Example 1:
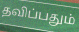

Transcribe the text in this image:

தவிப்பதும்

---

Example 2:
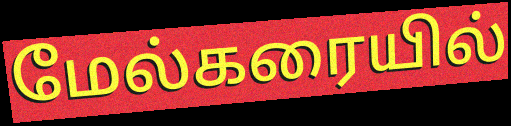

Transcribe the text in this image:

மேல்கரையில்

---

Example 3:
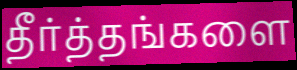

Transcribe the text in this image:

தீர்த்தங்களை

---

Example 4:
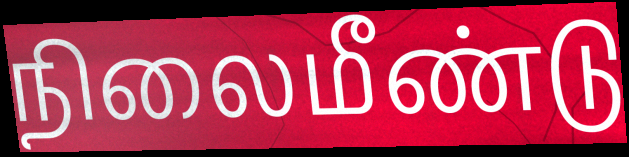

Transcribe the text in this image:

நிலைமீண்டு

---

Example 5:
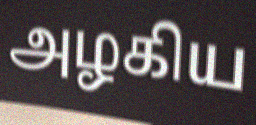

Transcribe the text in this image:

அழகிய